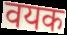
वयक